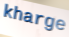
kharge